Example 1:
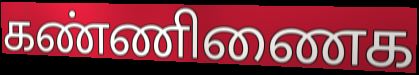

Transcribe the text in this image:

கண்ணிணைக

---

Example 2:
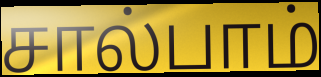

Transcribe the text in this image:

சால்பாம்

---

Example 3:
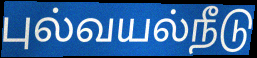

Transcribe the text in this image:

புல்வயல்நீடு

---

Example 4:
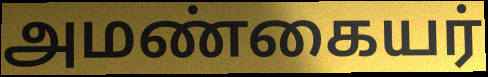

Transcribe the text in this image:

அமண்கையர்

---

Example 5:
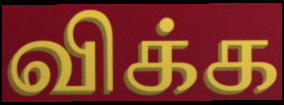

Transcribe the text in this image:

விக்க